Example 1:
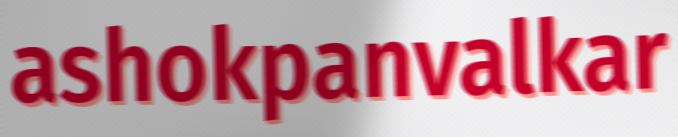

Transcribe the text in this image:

ashokpanvalkar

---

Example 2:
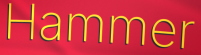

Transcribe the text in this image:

Hammer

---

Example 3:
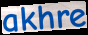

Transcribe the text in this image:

akhre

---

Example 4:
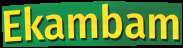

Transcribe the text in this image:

Ekambam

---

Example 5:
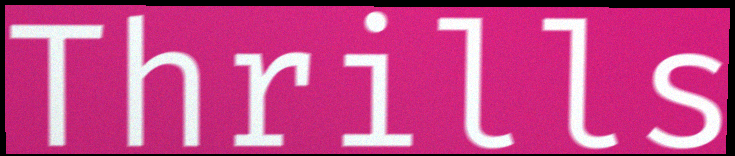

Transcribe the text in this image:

Thrills